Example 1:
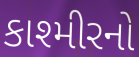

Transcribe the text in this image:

કાશ્મીરનો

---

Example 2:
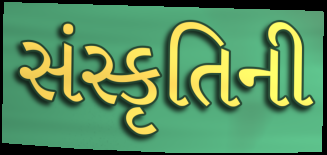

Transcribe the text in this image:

સંસ્કૃતિની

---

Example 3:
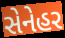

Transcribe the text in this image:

સેનેહર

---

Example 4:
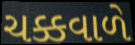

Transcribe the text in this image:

ચક્કવાળે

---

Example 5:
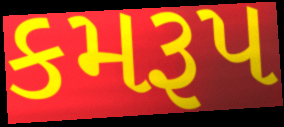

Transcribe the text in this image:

કમરૂપ